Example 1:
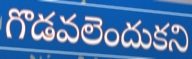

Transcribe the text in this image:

గొడవలెందుకని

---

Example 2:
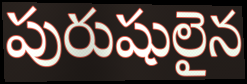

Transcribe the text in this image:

పురుషులైన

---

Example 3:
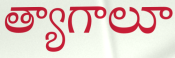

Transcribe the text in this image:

త్యాగాలూ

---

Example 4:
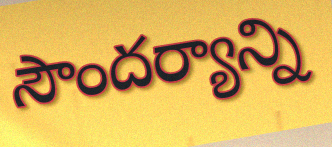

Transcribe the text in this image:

సౌందర్యాన్ని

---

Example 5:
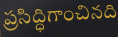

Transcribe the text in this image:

ప్రసిద్ధిగాంచినది